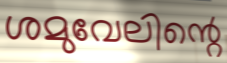
ശമുവേലിന്റെ